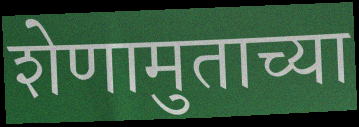
शेणामुताच्या